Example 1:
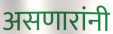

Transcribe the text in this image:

असणारांनी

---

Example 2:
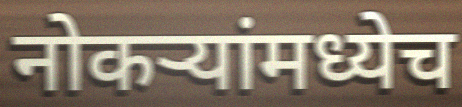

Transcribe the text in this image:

नोकऱ्यांमध्येच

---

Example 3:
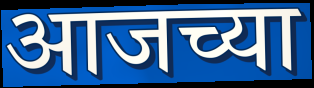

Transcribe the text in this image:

आजच्या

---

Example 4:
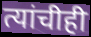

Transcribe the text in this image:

त्यांचीही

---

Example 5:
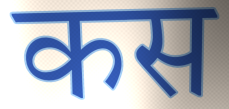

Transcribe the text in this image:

कस